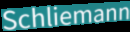
Schliemann